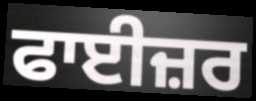
ਫਾਈਜ਼ਰ